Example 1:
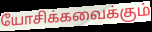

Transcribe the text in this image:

யோசிக்கவைக்கும்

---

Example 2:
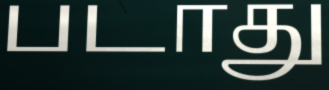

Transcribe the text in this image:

படாது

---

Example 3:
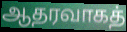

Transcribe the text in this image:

ஆதரவாகத்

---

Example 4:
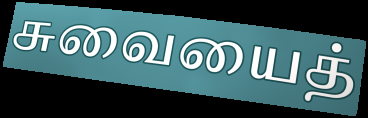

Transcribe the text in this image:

சுவையைத்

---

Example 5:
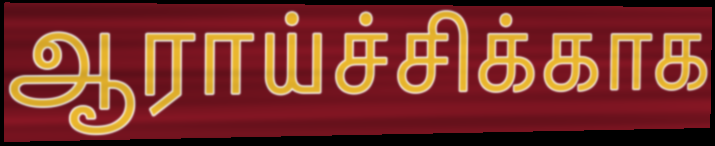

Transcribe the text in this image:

ஆராய்ச்சிக்காக